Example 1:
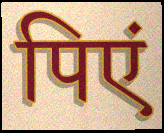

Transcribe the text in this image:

पिएं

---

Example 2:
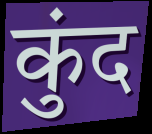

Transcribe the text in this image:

कुंद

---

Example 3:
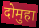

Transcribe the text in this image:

दोमुहा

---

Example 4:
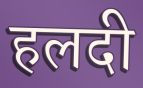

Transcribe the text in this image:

हलदी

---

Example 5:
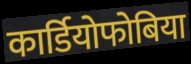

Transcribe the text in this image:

कार्डियोफोबिया